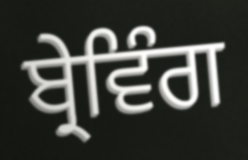
ਬ੍ਰੇਵਿੰਗ